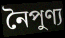
নৈপুণ্য